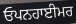
ਓਪਨਹਾਈਮਰ